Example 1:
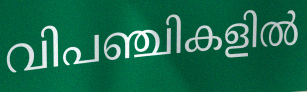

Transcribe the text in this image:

വിപഞ്ചികളിൽ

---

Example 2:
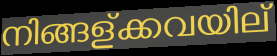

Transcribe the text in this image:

നിങ്ങള്ക്കവയില്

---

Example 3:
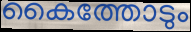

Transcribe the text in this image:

കൈത്തോടും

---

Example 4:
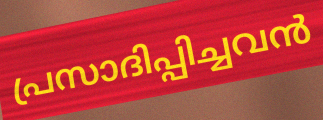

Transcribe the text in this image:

പ്രസാദിപ്പിച്ചവൻ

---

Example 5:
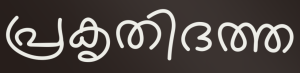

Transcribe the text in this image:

പ്രകൃതിദത്ത